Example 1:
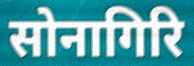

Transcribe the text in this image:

सोनागिरि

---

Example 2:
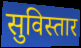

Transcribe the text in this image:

सुविस्तार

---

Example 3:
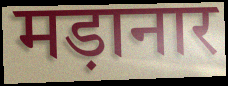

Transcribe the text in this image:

मड़ानार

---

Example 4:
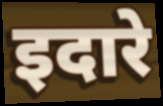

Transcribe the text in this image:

इदारे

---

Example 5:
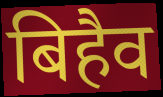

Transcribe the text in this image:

बिहैव